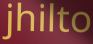
jhilto